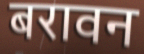
बरावन